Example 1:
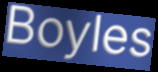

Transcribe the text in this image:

Boyles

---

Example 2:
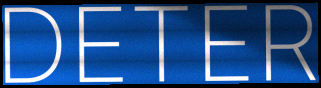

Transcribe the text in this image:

DETER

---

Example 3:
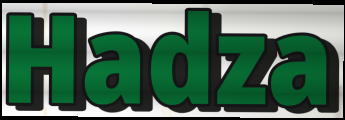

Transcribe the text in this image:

Hadza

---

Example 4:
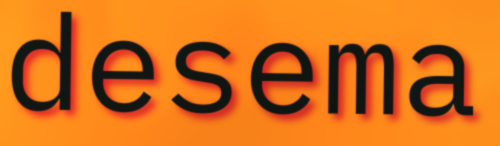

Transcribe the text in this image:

desema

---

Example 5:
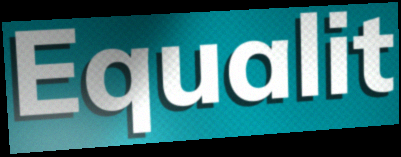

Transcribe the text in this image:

Equalit